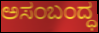
ಅಸಂಬಂದ್ಧ